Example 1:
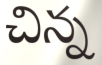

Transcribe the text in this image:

చిన్న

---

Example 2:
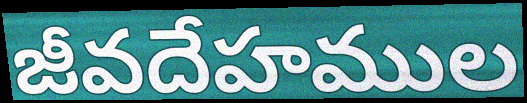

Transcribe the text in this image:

జీవదేహముల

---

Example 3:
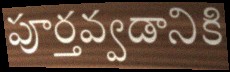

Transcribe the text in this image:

పూర్తవ్వడానికి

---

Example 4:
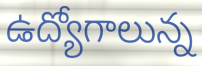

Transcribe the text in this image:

ఉద్యోగాలున్న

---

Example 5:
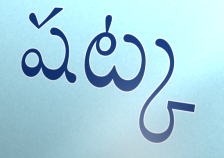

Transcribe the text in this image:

షట్క